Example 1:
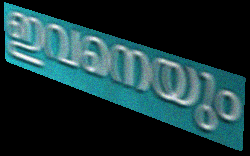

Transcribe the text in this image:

ഇവനെയും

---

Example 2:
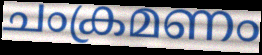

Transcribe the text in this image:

ചംക്രമണം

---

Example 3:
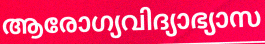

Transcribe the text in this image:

ആരോഗ്യവിദ്യാഭ്യാസ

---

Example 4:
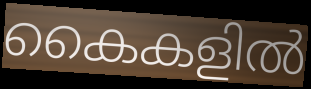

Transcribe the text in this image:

കൈകളിൽ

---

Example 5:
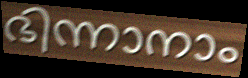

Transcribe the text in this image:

ഭിന്നാനാം